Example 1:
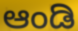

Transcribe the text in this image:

ಆಂಡಿ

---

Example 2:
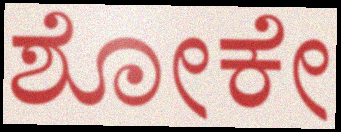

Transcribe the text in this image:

ಶೋಕೇ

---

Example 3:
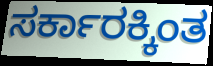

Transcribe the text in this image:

ಸರ್ಕಾರಕ್ಕಿಂತ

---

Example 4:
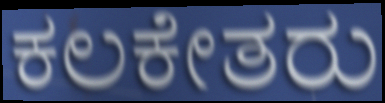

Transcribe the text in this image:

ಕಲಕೇತರು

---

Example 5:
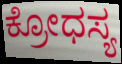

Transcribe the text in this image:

ಕ್ರೋಧಸ್ಯ